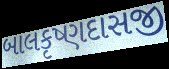
બાલકૃષ્ણદાસજી